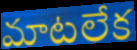
మాటలేక